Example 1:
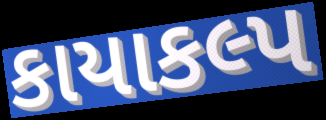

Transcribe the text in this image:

કાયાકલ્પ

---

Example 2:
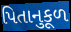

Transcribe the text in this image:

પિતાનુકૂળ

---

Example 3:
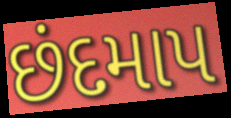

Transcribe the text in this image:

છંદમાપ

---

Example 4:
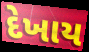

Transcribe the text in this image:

દેખાય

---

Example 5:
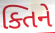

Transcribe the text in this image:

ક્તિને